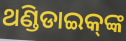
ଥଣ୍ଡିଡାଇକ୍‌ଙ୍କ